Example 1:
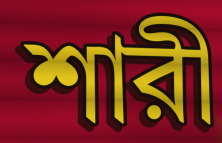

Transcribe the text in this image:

শারী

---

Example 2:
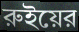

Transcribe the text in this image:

রুইয়ের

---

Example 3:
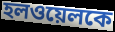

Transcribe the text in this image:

হলওয়েলকে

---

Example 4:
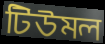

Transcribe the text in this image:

টিউমল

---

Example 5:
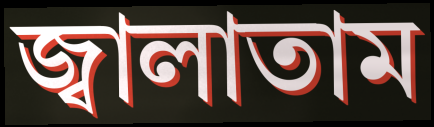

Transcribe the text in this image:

জ্বালাতাম